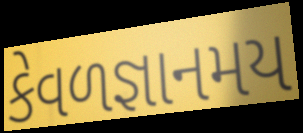
કેવળજ્ઞાનમય